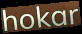
hokar